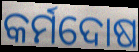
କର୍ମଦୋଷ